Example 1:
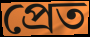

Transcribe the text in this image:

প্রেত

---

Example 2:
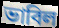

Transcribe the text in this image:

ভাবিল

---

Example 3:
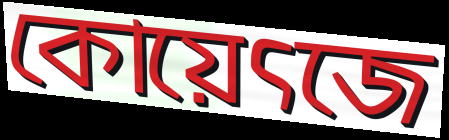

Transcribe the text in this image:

কোয়েৎজে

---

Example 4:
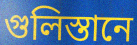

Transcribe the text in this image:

গুলিস্তানে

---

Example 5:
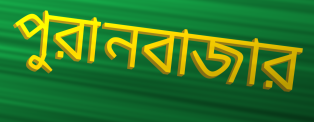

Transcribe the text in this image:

পুরানবাজার